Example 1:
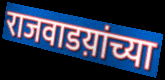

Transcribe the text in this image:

राजवाडय़ांच्या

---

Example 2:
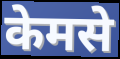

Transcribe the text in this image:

केमसे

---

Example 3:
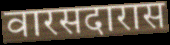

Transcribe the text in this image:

वारसदारास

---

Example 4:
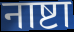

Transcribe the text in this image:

नाष्टा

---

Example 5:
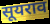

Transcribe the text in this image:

सूयराव